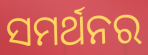
ସମର୍ଥନର